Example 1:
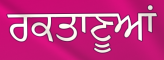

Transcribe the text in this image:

ਰਕਤਾਣੂਆਂ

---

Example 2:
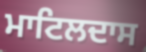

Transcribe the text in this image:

ਮਾਟਿਲਦਾਸ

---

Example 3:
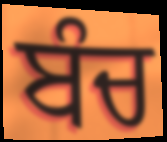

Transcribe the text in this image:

ਬੰਚ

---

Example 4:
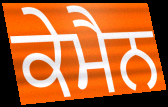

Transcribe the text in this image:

ਕੇਮੈਨ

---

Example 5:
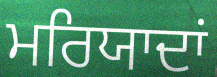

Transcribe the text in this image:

ਮਰਿਯਾਦਾਂ